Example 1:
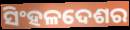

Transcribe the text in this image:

ସିଂହଳଦେଶର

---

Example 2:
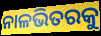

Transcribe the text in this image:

ନାଳଭିତରକୁ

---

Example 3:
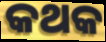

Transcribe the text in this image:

କଥକ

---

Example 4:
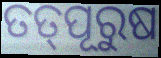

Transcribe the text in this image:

ତତ୍‌ପୂରୁଷ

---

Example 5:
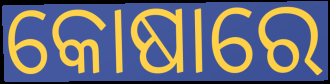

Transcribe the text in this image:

କୋଷାରେ